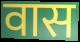
वास